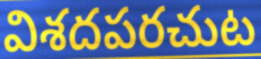
విశదపరచుట